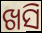
ଖସି